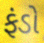
ફંડો